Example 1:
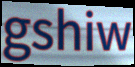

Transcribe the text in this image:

gshiw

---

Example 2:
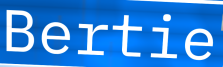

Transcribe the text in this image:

Bertie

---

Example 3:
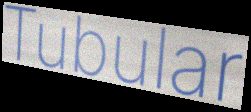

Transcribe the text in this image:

Tubular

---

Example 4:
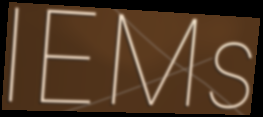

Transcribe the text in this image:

IEMs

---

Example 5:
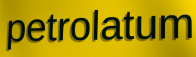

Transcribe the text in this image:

petrolatum